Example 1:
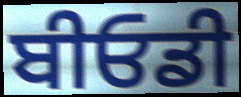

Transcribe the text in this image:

ਬੀਓਡੀ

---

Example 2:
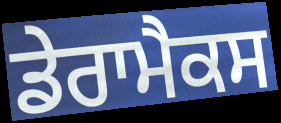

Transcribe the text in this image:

ਡੇਰਾਮੈਕਸ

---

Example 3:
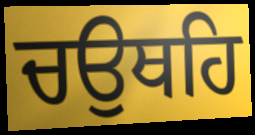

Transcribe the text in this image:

ਚਉਥਹਿ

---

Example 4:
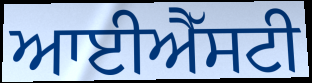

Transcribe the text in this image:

ਆਈਐੱਸਟੀ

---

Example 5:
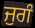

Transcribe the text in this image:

ਜੁਗੰ